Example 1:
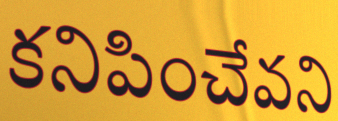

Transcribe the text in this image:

కనిపించేవని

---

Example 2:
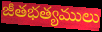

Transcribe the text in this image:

జీతభత్యములు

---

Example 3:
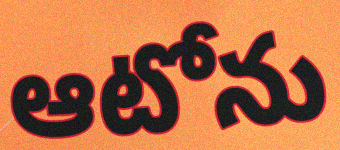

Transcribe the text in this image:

ఆటోను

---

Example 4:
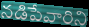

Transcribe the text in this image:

నడిపేవారిని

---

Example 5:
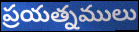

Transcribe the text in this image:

ప్రయత్నములు